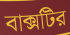
বাক্সটির